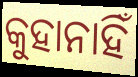
କୁହାନାହିଁ